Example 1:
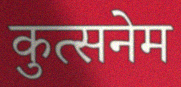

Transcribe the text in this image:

कुत्सनेम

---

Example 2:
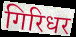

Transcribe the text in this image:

गिरिधर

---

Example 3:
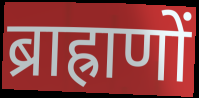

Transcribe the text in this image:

ब्राह्राणों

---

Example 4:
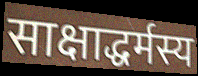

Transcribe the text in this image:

साक्षाद्धर्मस्य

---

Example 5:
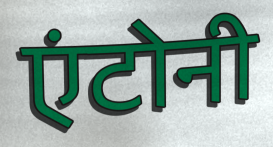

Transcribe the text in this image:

एंटोनी